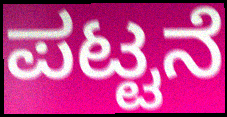
ಪಟ್ಟನೆ